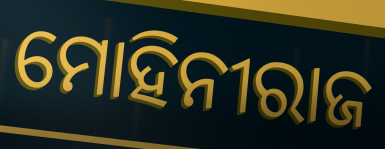
ମୋହିନୀରାଜ